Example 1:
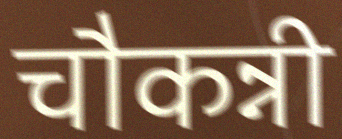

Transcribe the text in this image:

चौकन्नी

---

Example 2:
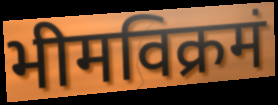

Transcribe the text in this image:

भीमविक्रमं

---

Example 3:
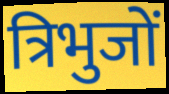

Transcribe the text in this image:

त्रिभुजों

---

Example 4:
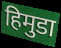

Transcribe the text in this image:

हिमुडा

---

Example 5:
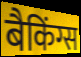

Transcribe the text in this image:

बैकिंग्स